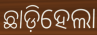
ଛାଡ଼ିହେଲା